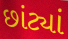
છાંટ્યાં